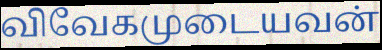
விவேகமுடையவன்